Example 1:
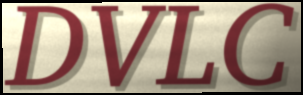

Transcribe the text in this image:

DVLC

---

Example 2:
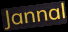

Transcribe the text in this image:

Jannal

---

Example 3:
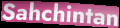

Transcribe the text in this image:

Sahchintan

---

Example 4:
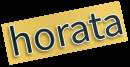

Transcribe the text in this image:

horata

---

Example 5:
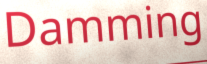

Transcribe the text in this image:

Damming